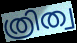
ത്രിത്വ